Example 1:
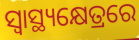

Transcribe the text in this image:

ସ୍ୱାସ୍ଥ୍ୟକ୍ଷେତ୍ରରେ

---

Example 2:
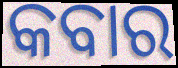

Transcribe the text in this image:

କବାର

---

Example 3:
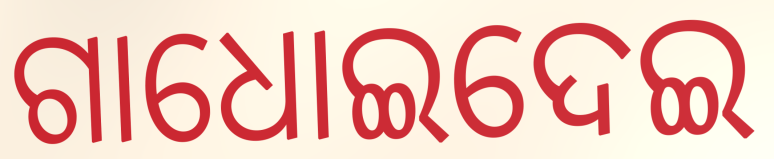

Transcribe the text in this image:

ଗାଧୋଇଦେଇ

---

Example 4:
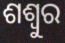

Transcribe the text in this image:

ଶଶ୍ୱୁର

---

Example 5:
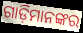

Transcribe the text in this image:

ଗାଡ଼ିମାନଙ୍କର